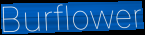
Burflower